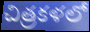
చిత్రకళలో